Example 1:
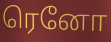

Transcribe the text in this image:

ரெனோ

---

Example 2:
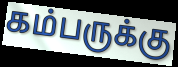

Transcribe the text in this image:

கம்பருக்கு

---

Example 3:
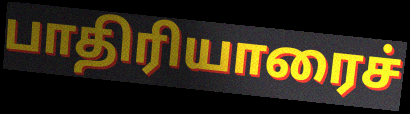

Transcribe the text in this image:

பாதிரியாரைச்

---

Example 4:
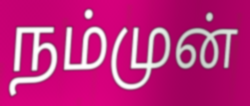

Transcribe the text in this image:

நம்முன்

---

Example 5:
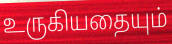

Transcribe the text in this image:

உருகியதையும்